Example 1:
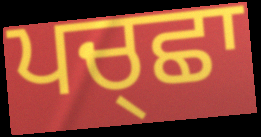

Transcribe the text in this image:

ਪਚ੍ਛਾ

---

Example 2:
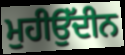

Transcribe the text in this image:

ਮੁਹੀਉੱਦੀਨ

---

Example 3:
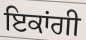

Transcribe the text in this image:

ਇਕਾਂਗੀ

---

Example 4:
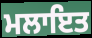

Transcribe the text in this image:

ਮਲਾਇਤ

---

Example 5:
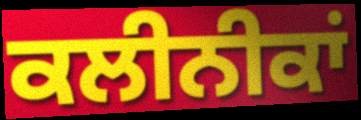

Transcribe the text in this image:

ਕਲੀਨੀਕਾਂ